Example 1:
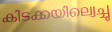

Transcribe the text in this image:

കിടക്കയില്വെച്ചു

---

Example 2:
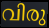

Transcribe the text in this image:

വിരു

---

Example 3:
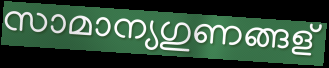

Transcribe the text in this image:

സാമാന്യഗുണങ്ങള്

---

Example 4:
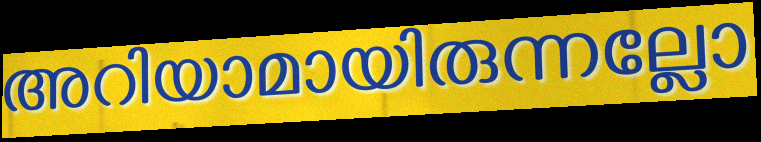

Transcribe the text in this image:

അറിയാമായിരുന്നല്ലോ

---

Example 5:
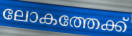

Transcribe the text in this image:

ലോകത്തേക്ക്